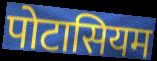
पोटासियम